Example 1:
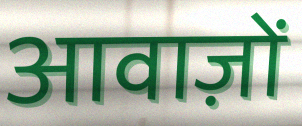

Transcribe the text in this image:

आवाज़ों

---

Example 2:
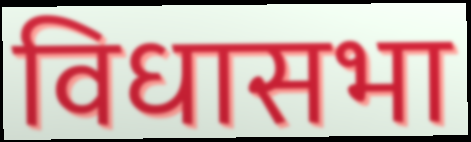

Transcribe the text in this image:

विधासभा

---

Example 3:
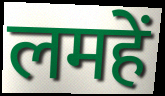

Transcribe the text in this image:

लमहें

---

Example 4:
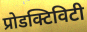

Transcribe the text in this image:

प्रोडक्टिविटी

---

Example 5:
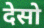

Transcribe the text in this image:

देसो